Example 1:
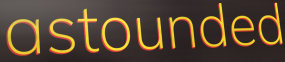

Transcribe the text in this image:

astounded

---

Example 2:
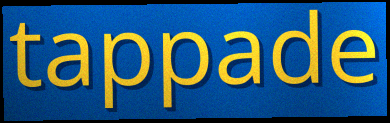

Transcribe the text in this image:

tappade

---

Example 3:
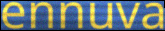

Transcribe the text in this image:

ennuva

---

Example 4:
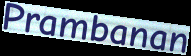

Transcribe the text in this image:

Prambanan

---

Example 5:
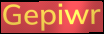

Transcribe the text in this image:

Gepiwr